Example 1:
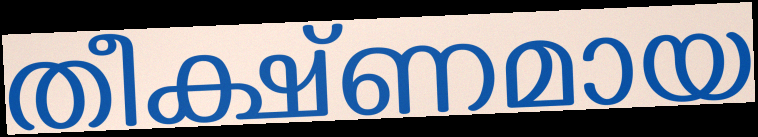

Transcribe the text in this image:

തീക്ഷ്‌ണമായ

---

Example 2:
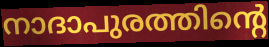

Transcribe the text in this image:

നാദാപുരത്തിന്റെ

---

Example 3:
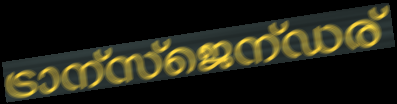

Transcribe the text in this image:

ട്രാന്സ്ജെന്ഡര്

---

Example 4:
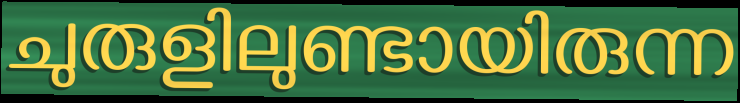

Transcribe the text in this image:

ചുരുളിലുണ്ടായിരുന്ന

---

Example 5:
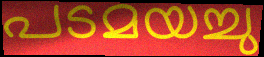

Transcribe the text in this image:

പടമയച്ചു